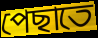
পেছাতে